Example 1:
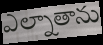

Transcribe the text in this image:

ఎల్నాతాను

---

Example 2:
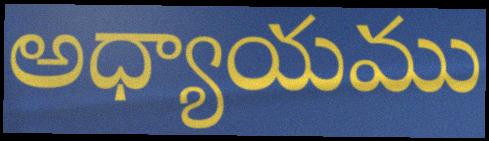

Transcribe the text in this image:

అధ్యాయము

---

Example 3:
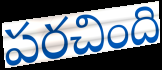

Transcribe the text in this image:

పరచింది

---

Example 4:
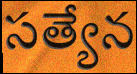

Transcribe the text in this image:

సత్యేన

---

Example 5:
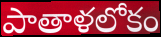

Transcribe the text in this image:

పాతాళలోకం